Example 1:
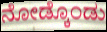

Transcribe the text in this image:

ನೋಡ್ಕೊಂಡು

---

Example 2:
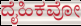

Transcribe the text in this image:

ದೈಹಿಕವೋ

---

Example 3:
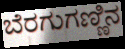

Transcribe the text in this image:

ಬೆರಗುಗಣ್ಣಿನ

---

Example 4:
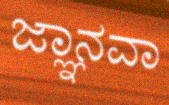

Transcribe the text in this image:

ಜ್ಞಾನವಾ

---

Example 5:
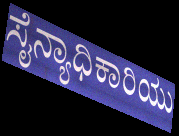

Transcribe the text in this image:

ಸೈನ್ಯಾಧಿಕಾರಿಯು